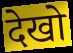
देखो